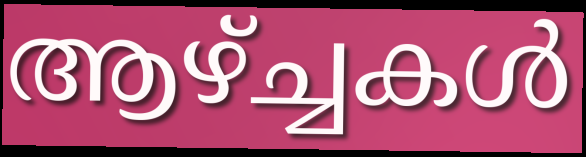
ആഴ്ച്ചകൾ